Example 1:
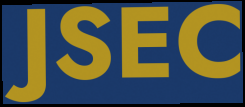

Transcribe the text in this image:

JSEC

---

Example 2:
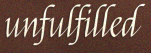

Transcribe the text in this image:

unfulfilled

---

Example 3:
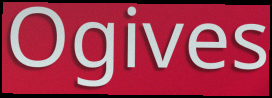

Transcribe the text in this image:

Ogives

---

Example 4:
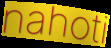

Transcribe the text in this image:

nahoti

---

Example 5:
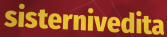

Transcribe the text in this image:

sisternivedita